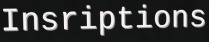
Insriptions